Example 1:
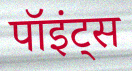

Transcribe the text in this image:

पॉइंट्स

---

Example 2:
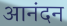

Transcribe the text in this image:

आनंदन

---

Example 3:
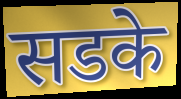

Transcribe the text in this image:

सडके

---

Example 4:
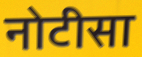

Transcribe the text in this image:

नोटीसा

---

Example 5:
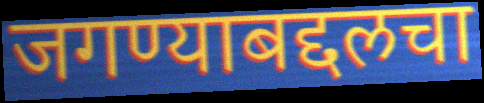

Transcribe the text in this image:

जगण्याबद्दलचा